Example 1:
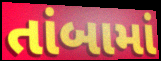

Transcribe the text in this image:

તાંબામાં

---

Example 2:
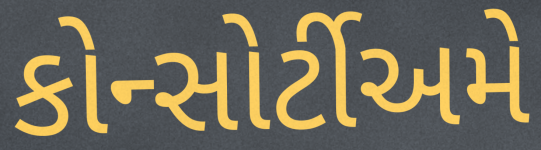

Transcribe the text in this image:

કોન્સોર્ટીઅમે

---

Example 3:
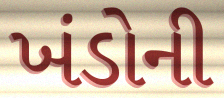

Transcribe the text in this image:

ખંડોની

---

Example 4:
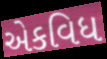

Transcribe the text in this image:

એકવિધ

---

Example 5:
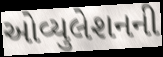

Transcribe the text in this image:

ઓવ્યુલેશનની